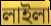
লাইলা